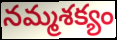
నమ్మశక్యం